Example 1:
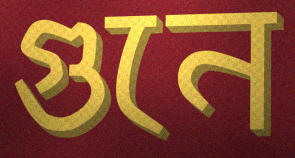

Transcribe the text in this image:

গুনে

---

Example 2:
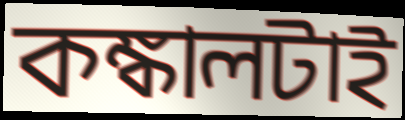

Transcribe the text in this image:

কঙ্কালটাই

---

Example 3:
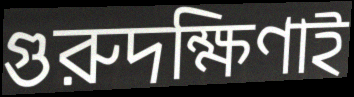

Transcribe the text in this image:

গুরুদক্ষিণাই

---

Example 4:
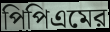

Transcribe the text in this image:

পিপিএমের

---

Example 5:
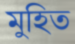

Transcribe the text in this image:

মুহিত